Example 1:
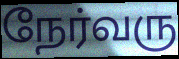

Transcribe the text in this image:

நேர்வரு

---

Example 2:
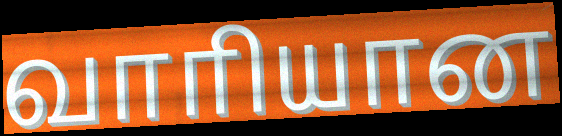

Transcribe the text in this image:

வாரியான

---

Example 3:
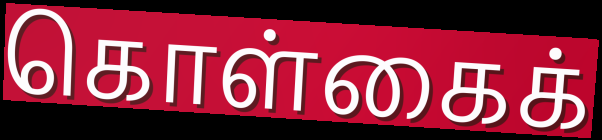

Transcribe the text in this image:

கொள்கைக்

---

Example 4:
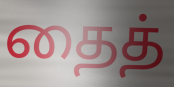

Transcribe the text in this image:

தைத்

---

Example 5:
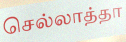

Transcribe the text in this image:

செல்லாத்தா